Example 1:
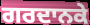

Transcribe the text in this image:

ਗਰਦਾਨਕੇ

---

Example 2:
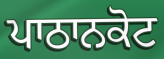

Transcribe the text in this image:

ਪਾਠਾਨਕੋਟ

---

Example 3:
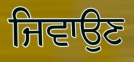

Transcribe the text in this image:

ਜਿਵਾਉਣ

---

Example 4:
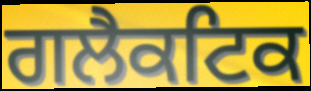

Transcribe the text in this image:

ਗਲੈਕਟਿਕ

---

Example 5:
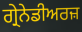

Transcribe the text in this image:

ਗ੍ਰੇਨੇਡੀਅਰਜ਼